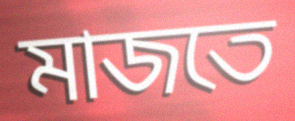
মাজতে